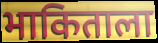
भाकिताला